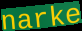
narke